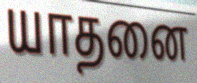
யாதனை